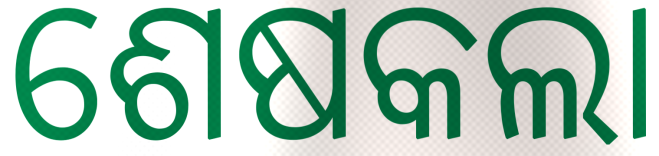
ଶେଷକଲା